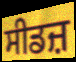
ਸੀਡਜ਼